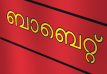
ബാബെറ്റ്